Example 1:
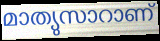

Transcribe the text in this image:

മാത്യുസാറാണ്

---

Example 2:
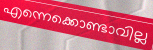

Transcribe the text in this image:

എന്നെക്കൊണ്ടാവില്ല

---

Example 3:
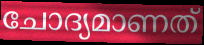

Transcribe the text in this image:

ചോദ്യമാണത്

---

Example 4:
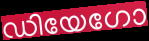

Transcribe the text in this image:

ഡിയേഗോ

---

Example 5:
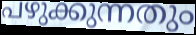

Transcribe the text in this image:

പഴുക്കുന്നതും